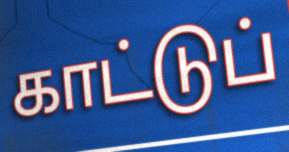
காட்டுப்